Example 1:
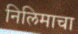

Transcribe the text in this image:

निलिमाचा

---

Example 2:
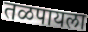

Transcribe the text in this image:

तळपायला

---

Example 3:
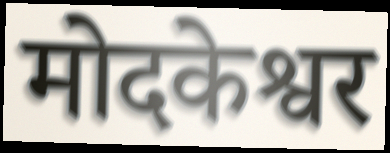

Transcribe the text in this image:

मोदकेश्वर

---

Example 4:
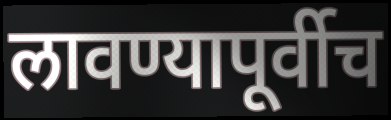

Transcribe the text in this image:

लावण्यापूर्वीच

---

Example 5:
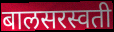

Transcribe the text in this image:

बालसरस्वती